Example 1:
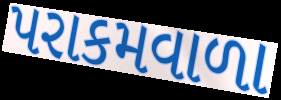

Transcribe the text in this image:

પરાકમવાળા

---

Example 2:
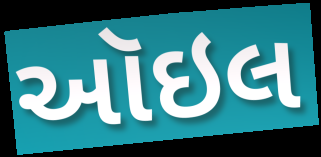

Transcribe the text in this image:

ઑઇલ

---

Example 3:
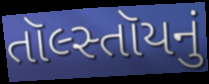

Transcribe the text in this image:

તૉલ્સ્તૉયનું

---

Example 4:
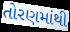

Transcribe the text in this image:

તોરણમાંથી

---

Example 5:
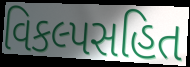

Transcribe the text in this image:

વિકલ્પસહિત